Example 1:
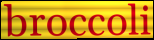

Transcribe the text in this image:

broccoli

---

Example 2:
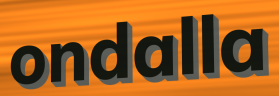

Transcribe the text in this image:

ondalla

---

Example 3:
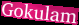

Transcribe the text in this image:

Gokulam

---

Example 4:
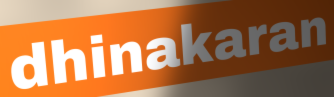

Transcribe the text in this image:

dhinakaran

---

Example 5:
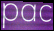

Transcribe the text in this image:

pac